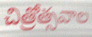
చిత్రోత్సవాల